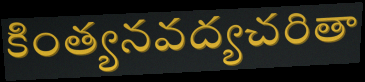
కింత్యనవద్యచరితా